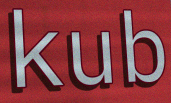
kub